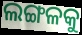
ଲଙ୍ଗଳକୁ